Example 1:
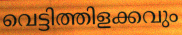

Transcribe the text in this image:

വെട്ടിത്തിളക്കവും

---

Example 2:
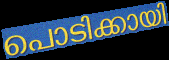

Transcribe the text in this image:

പൊടിക്കായി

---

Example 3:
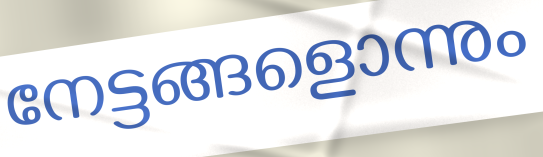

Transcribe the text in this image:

നേട്ടങ്ങളൊന്നും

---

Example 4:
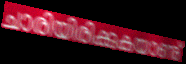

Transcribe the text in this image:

ചാരിയിരിക്കുകയാണു്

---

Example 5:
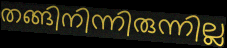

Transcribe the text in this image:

തങ്ങിനിന്നിരുന്നില്ല